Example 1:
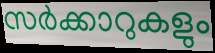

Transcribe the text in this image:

സർക്കാറുകളും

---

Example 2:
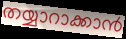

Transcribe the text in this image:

തയ്യാറാക്കാൻ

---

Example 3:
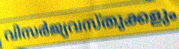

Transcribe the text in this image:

വിസർജ്യവസ്തുക്കളും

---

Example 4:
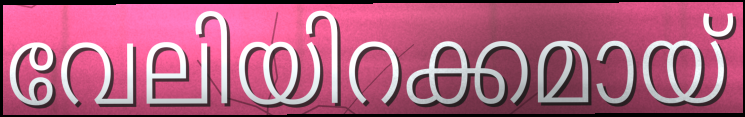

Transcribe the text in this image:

വേലിയിറക്കമായ്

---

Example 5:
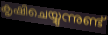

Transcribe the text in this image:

കൃഷിചെയ്യുന്നുണ്ട്